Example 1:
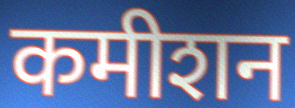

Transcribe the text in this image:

कमीशन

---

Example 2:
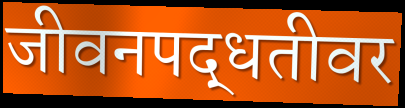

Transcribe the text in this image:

जीवनपद्धतीवर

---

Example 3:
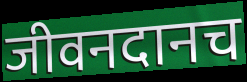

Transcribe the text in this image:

जीवनदानच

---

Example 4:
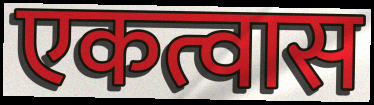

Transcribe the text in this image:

एकत्वास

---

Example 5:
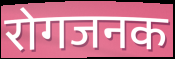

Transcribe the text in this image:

रोगजनक